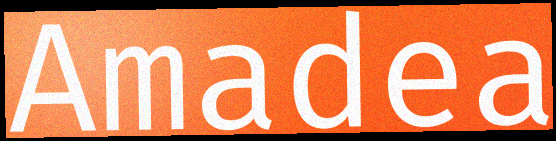
Amadea